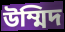
উম্মিদ